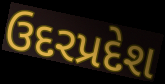
ઉદરપ્રદેશ